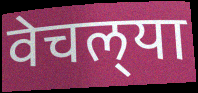
वेचल्या